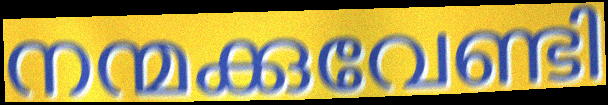
നന്മക്കുവേണ്ടി